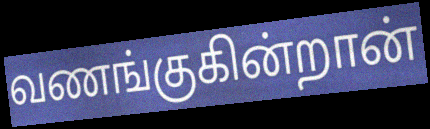
வணங்குகின்றான்